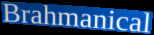
Brahmanical